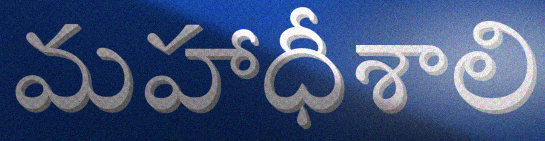
మహాధీశాలి